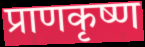
प्राणकृष्ण